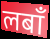
लबाँ